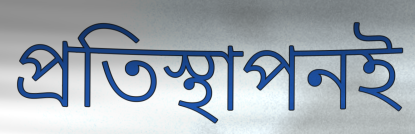
প্রতিস্থাপনই